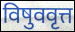
विषुववृत्त